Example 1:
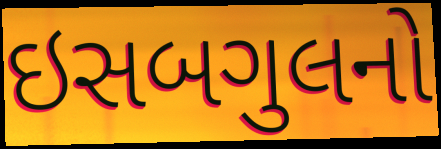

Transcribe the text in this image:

ઇસબગુલનો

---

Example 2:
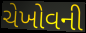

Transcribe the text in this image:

ચેખોવની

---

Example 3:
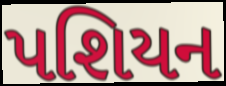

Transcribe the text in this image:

પશિયન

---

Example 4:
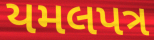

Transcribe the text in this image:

યમલપત્ર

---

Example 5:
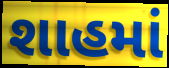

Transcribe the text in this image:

શાહમાં